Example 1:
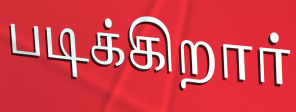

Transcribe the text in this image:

படிக்கிறார்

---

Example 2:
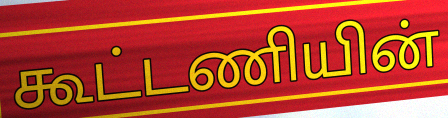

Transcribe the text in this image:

கூட்டணியின்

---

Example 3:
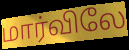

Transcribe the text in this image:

மார்விலே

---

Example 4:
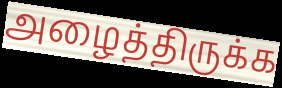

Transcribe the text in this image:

அழைத்திருக்க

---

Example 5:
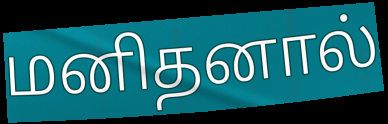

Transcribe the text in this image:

மனிதனால்